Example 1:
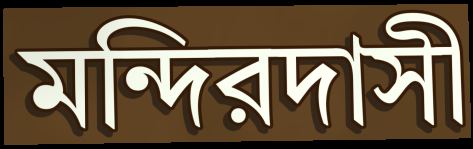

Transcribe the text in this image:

মন্দিরদাসী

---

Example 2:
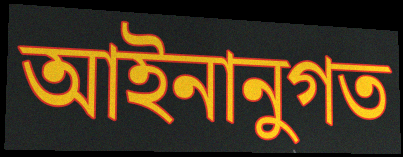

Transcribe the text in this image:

আইনানুগত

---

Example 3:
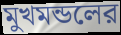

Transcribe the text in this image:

মুখমন্ডলের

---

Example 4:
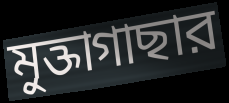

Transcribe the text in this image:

মুক্তাগাছার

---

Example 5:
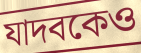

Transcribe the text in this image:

যাদবকেও